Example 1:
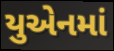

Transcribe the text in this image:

યુએનમાં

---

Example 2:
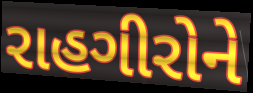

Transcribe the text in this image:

રાહગીરોને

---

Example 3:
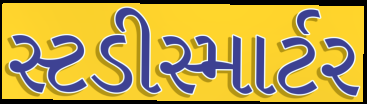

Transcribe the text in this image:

સ્ટડીસ્માર્ટર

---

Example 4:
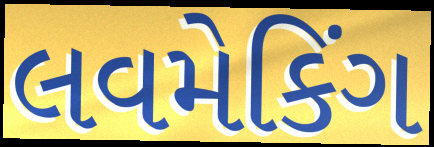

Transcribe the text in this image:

લવમેકિંગ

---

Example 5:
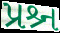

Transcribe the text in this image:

પ્રશ્ર્ન